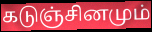
கடுஞ்சினமும்